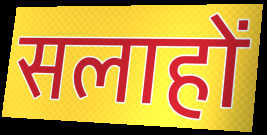
सलाहों